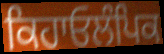
ਕਿਹਾਓਲੰਪਿਕ